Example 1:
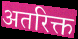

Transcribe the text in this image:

अतरिक्त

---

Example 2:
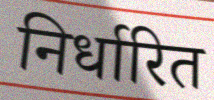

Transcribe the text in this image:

निर्धारित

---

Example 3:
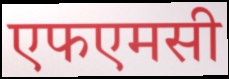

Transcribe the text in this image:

एफएमसी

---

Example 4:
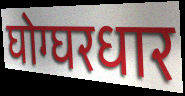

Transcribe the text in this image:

घोग्घरधार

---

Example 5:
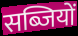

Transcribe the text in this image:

सब्जियों